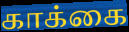
காக்கை